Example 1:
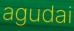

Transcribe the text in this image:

agudai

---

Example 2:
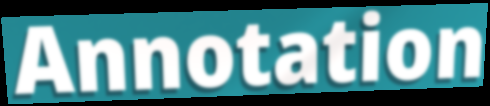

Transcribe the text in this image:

Annotation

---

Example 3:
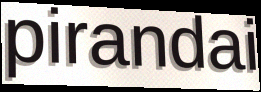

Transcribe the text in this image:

pirandai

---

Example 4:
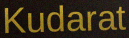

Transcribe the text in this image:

Kudarat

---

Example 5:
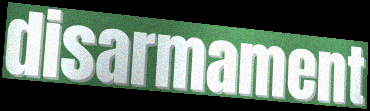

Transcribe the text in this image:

disarmament